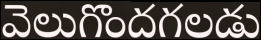
వెలుగొందగలడు